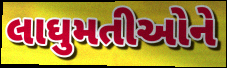
લાઘુમતીઓને